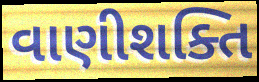
વાણીશક્તિ